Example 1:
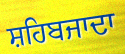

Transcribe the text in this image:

ਸ਼ਹਿਬਜਾਦਾ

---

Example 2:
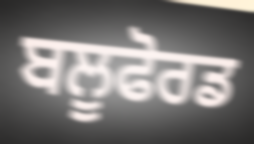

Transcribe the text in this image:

ਬਲੂਫੋਰਡ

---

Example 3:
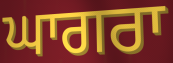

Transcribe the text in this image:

ਘਾਗਰਾ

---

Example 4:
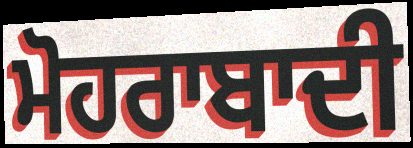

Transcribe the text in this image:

ਮੋਹਰਾਬਾਦੀ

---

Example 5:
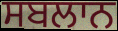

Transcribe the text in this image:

ਸਬਲਾਨ